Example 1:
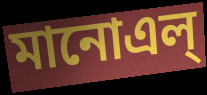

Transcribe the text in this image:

মানোএল্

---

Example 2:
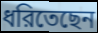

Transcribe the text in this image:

ধরিতেছেন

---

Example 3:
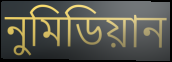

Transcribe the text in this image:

নুমিডিয়ান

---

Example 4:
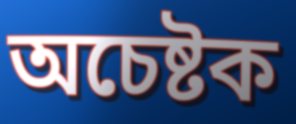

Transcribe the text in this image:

অচেষ্টক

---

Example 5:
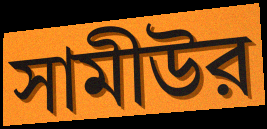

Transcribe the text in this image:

সামীউর